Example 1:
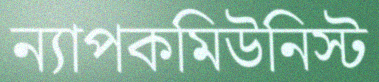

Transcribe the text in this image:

ন্যাপকমিউনিস্ট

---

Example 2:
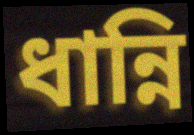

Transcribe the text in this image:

ধান্নি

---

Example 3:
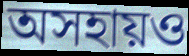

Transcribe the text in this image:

অসহায়ও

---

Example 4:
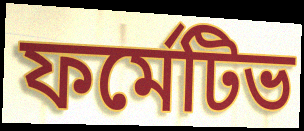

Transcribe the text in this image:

ফর্মেটিভ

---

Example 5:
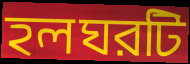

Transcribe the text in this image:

হলঘরটি